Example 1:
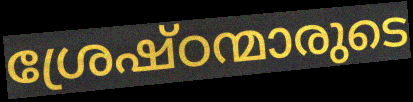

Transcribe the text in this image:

ശ്രേഷ്ഠന്മാരുടെ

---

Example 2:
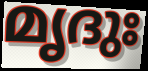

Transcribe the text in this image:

മൃദുഃ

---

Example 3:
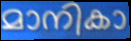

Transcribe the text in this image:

മാനികാ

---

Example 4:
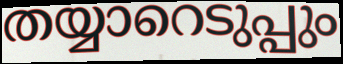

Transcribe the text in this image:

തയ്യാറെടുപ്പും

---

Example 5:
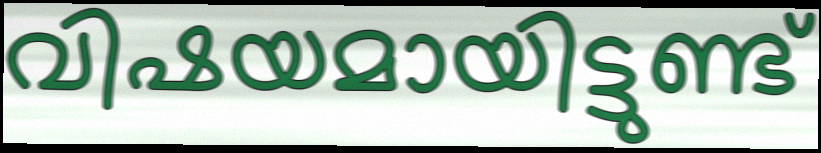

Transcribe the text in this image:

വിഷയമായിട്ടുണ്ട്